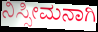
ನಿಸ್ಸೀಮನಾಗಿ